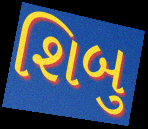
શિબુ